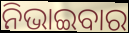
ନିଭାଇବାର